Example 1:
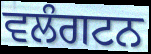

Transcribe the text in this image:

ਵਲੰਗਟਨ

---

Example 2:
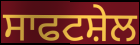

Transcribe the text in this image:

ਸਾਫਟਸ਼ੇਲ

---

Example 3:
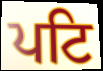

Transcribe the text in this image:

ਪਟਿ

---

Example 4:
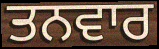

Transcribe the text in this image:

ਤਨਵਾਰ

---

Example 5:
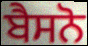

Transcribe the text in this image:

ਬੈਸਨੋ